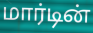
மார்டின்